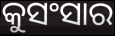
କୁସଂସାର